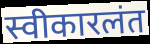
स्वीकारलंत